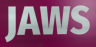
JAWS